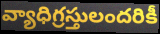
వ్యాధిగ్రస్తులందరికీ